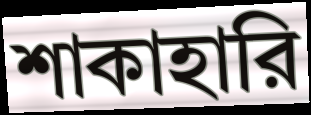
শাকাহারি